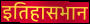
इतिहासभान